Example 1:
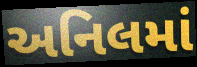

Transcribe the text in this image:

અનિલમાં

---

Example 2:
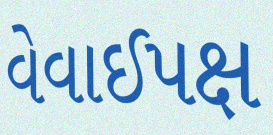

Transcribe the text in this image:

વેવાઈપક્ષ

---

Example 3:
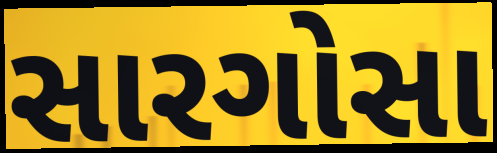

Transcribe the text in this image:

સારગોસા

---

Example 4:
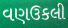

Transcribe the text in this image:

વણઉકલી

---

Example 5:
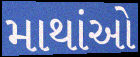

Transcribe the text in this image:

માથાંઓ